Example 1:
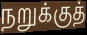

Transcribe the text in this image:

நறுக்குத்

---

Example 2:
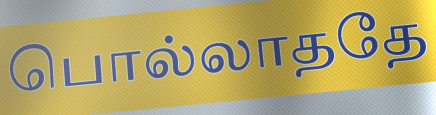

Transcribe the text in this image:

பொல்லாததே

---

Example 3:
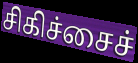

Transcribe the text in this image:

சிகிச்சைச்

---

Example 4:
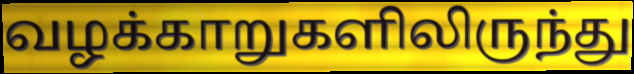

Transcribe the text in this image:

வழக்காறுகளிலிருந்து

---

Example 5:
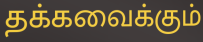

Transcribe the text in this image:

தக்கவைக்கும்